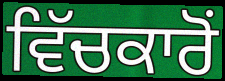
ਵਿੱਚਕਾਰੋਂ